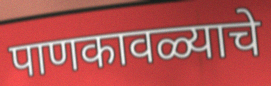
पाणकावळ्याचे